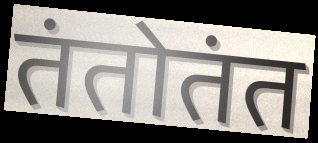
तंतोतंत